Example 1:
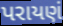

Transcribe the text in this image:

પરાયણં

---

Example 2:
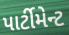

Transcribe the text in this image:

પાર્ટીમેન્ટ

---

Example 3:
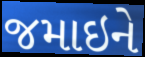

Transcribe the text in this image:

જમાઇને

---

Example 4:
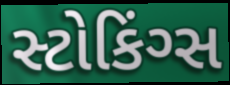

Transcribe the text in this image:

સ્ટોકિંગ્સ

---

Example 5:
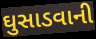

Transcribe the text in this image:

ઘુસાડવાની